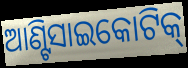
ଆଣ୍ଟିସାଇକୋଟିକ୍